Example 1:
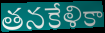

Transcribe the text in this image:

తనకేళికా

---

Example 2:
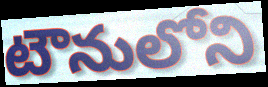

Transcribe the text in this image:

టౌనులోని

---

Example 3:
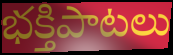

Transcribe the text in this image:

భక్తిపాటలు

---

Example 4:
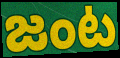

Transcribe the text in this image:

జంట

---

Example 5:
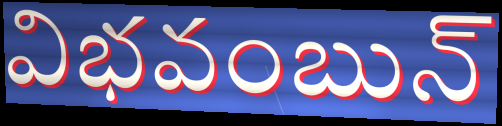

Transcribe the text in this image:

విభవంబున్